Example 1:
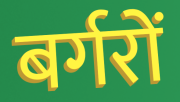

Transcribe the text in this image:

बर्गरों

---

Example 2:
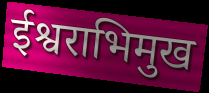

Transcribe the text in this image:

ईश्वराभिमुख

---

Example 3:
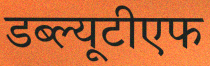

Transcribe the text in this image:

डब्ल्यूटीएफ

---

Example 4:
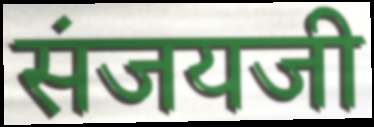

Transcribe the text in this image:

संजयजी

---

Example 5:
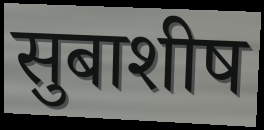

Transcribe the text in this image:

सुबाशीष